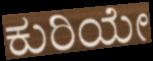
ಕುರಿಯೇ